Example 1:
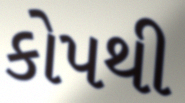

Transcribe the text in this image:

કોપથી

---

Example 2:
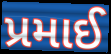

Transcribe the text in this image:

પ્રમાઈ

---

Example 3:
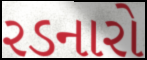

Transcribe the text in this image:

રડનારો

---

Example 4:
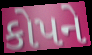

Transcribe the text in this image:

કોપને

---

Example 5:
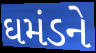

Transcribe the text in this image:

ઘમંડને